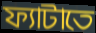
ফ্যাটাতে